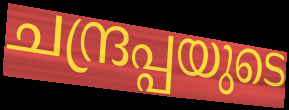
ചന്ദ്രപ്പയുടെ